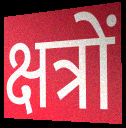
क्षत्रों